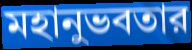
মহানুভবতার